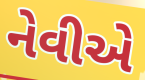
નેવીએ